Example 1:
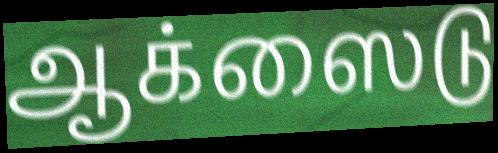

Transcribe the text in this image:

ஆக்ஸைடு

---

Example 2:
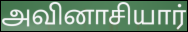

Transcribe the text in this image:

அவினாசியார்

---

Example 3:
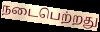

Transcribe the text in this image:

நடைபெற்றது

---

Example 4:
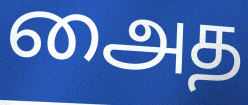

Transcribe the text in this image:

அைத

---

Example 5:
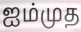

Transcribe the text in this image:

ஐம்முத